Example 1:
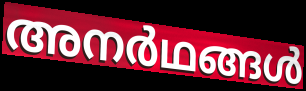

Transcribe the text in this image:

അനർഥങ്ങൾ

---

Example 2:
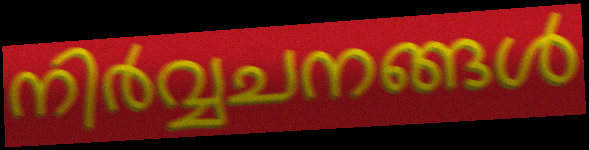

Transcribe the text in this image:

നിർവ്വചനങ്ങൾ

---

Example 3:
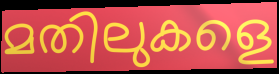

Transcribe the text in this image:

മതിലുകളെ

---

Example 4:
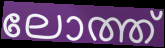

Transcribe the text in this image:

ലോത്ത്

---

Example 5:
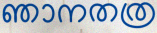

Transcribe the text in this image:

ഞാനതത്ര